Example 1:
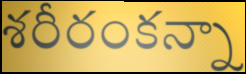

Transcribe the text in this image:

శరీరంకన్నా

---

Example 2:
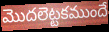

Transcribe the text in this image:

మొదలెట్టకముందే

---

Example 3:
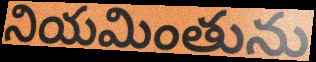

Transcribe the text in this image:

నియమింతును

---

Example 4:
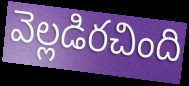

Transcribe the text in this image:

వెల్లడిరచింది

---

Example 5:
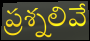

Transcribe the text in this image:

ప్రశ్నలివే